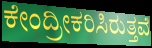
ಕೇಂದ್ರೀಕರಿಸಿರುತ್ತವೆ